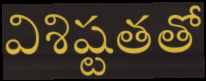
విశిష్టతతో